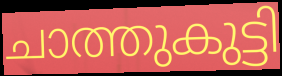
ചാത്തുകുട്ടി